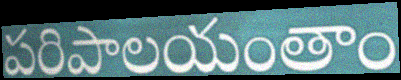
పరిపాలయంతాం